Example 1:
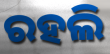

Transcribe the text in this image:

ରହଲି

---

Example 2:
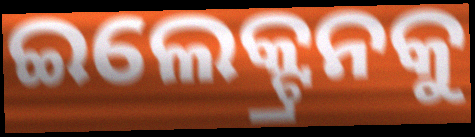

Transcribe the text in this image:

ଇଲେକ୍ଟ୍ରନକୁ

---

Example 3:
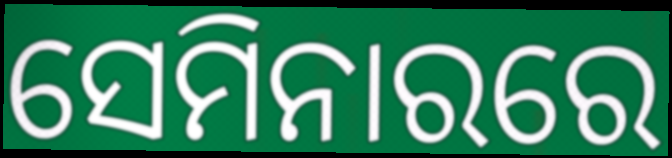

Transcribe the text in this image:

ସେମିନାରରେ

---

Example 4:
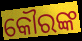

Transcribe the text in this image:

କୌରଙ୍କ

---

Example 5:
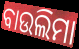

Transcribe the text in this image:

ବାଉଲିମା